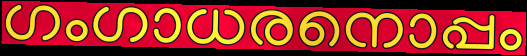
ഗംഗാധരനൊപ്പം